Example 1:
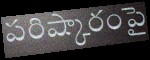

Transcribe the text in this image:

పరిష్కారంపై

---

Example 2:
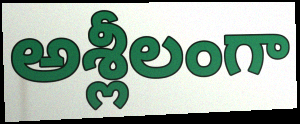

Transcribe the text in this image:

అశ్లీలంగా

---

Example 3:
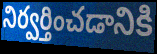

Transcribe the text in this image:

నిర్వర్తించడానికి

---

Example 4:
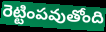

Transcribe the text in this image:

రెట్టింపవుతోంది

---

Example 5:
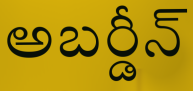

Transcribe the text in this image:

అబర్డీన్